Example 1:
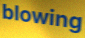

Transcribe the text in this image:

blowing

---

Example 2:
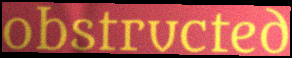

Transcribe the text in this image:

obstructed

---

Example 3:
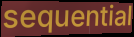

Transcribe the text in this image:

sequential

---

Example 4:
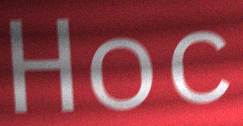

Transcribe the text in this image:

Hoc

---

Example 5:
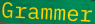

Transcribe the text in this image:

Grammer